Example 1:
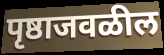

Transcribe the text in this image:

पृष्ठाजवळील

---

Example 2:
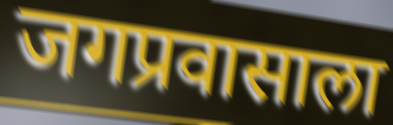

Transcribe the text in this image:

जगप्रवासाला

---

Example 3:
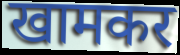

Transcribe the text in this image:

खामकर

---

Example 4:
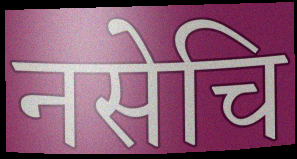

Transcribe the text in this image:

नसेचि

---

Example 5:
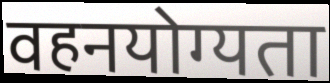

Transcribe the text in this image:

वहनयोग्यता